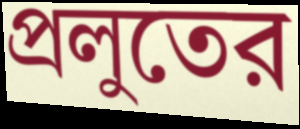
প্রলুতের